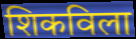
शिकविला